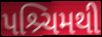
પશ્ર્ચિમથી